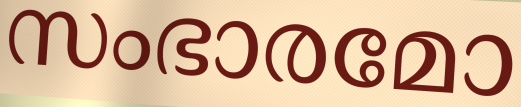
സംഭാരമോ